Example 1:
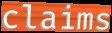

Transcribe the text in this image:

claims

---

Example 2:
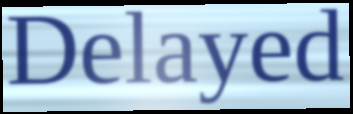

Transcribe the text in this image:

Delayed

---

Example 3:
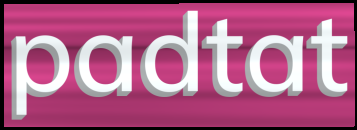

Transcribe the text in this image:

padtat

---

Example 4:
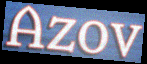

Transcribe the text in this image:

Azov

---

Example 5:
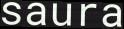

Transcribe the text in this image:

saura